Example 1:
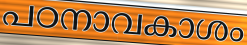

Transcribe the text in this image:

പഠനാവകാശം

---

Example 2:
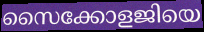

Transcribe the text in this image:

സൈക്കോളജിയെ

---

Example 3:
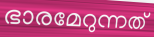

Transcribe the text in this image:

ഭാരമേറുന്നത്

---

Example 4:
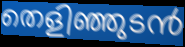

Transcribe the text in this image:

തെളിഞ്ഞുടൻ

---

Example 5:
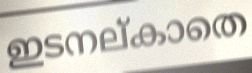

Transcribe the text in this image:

ഇടനല്കാതെ